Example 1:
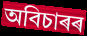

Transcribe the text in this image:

অবিচাৰৰ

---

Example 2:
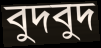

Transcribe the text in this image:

বুদবুদ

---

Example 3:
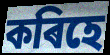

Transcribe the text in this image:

কৰিহে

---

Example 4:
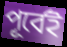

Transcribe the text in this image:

পূৰ্বেই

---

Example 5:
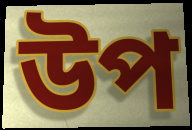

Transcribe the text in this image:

উপ